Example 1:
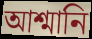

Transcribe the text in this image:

আশ্মানি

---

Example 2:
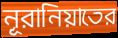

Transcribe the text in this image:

নূরানিয়াতের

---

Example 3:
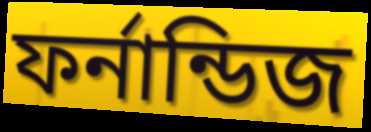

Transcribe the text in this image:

ফর্নান্ডিজ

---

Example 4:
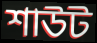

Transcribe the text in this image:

শাউট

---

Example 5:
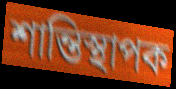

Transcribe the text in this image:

শান্তিস্থাপক